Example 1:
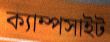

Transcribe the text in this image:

ক্যাম্পসাইট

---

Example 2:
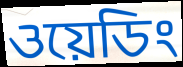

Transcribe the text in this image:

ওয়েডিং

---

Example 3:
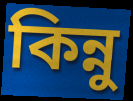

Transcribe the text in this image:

কিন্নু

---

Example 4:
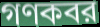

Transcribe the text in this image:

গণকবর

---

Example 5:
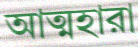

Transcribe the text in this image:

আত্মহারা